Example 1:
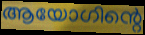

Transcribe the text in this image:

ആയോഗിന്റെ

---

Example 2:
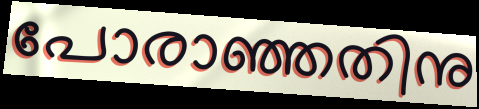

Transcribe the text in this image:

പോരാഞ്ഞതിനു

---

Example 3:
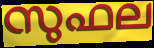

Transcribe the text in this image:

സുഫല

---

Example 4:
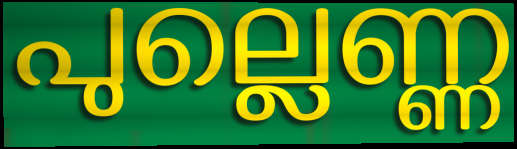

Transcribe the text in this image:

പുല്ലെണ്ണ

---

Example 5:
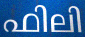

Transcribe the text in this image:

ഫിലി